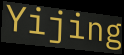
Yijing